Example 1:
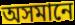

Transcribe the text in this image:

অসমানে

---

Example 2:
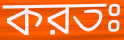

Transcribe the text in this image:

করতঃ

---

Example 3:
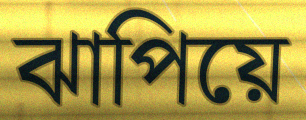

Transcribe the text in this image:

ঝাপিয়ে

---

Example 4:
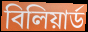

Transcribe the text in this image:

বিলিয়ার্ড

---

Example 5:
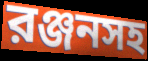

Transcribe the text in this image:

রঞ্জনসহ